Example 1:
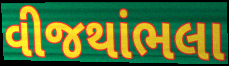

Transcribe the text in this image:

વીજથાંભલા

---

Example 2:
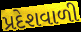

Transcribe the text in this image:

પ્રદેશવાળી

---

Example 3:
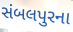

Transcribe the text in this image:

સંબલપુરના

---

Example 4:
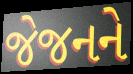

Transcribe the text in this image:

જેજનને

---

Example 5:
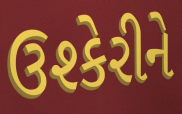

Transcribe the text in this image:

ઉશ્કેરીને